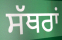
ਸੱਥਰਾਂ